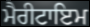
ਮੈਰੀਟਾਇਮ